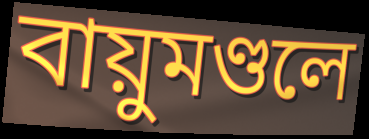
বায়ুমণ্ডলে